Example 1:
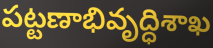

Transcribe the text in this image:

పట్టణాభివృద్ధిశాఖ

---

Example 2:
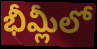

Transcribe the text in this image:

భీమ్లీలో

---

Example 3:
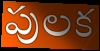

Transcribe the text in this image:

పులక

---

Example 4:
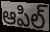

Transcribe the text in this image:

ఆపిల్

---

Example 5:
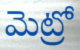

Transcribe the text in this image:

మెట్రో